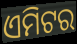
ଏମିଟର